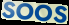
SOOS